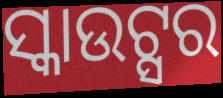
ସ୍କାଉଟ୍ସର